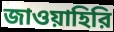
জাওয়াহিরি